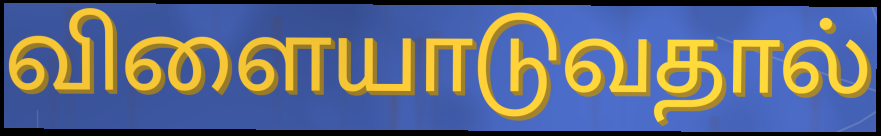
விளையாடுவதால்